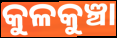
କୁଳକୁଞ୍ଚା